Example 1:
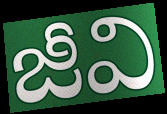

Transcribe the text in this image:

జీవి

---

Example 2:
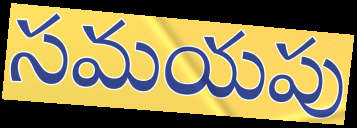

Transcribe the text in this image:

సమయపు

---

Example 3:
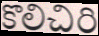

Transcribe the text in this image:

కొలిచిరి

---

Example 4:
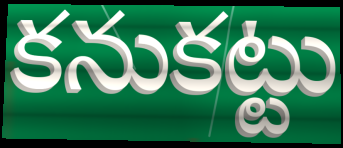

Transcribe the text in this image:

కనుకట్టు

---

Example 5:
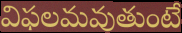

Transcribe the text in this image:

విఫలమవుతుంటే